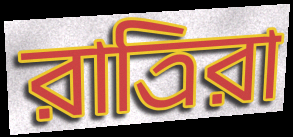
রাত্রিরা